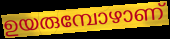
ഉയരുമ്പോഴാണ്